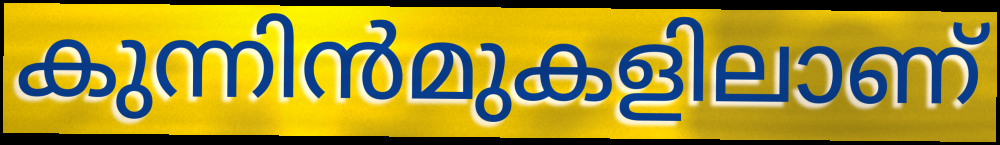
കുന്നിൻമുകളിലാണ്